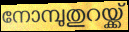
നോമ്പുതുറയ്ക്ക്